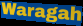
Waragah